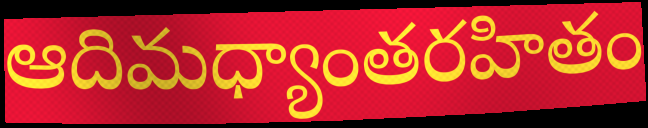
ఆదిమధ్యాంతరహితం